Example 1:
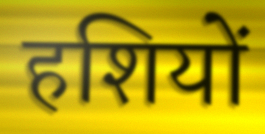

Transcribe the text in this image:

हशियों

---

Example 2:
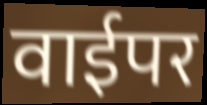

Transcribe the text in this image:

वाईपर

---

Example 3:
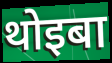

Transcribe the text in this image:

थोइबा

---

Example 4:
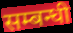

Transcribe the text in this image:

सम्बन्धी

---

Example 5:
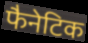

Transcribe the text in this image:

फैनेटिक